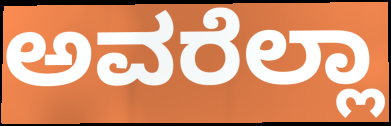
ಅವರೆಲ್ಲಾ